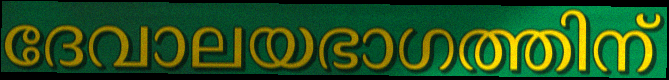
ദേവാലയഭാഗത്തിന്